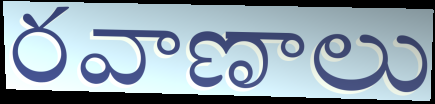
రవాణాలు